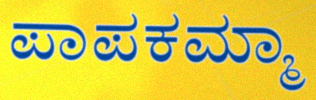
ಪಾಪಕಮ್ಮಾ